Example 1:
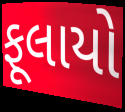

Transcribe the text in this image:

ફૂલાયો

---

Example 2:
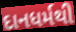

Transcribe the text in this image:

દાનધર્મથી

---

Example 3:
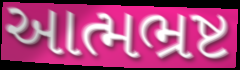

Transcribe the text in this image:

આત્મભ્રષ્ટ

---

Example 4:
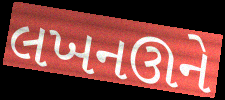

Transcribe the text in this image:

લખનઊને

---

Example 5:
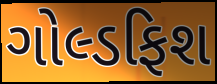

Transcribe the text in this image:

ગોલ્ડફિશ